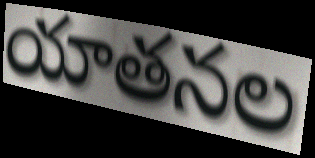
యాతనల